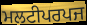
ਮਲਟੀਪਰਪਜ